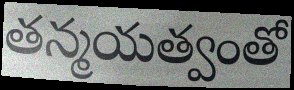
తన్మయత్వంతో